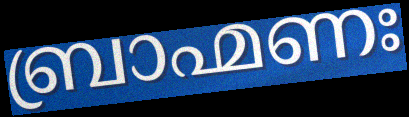
ബ്രാഹ്മണഃ